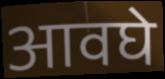
आवघे